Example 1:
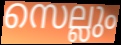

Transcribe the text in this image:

സെല്ലും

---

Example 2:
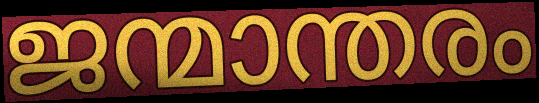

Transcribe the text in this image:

ജന്മാന്തരം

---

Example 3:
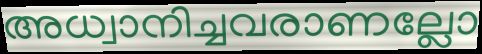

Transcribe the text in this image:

അധ്വാനിച്ചവരാണല്ലോ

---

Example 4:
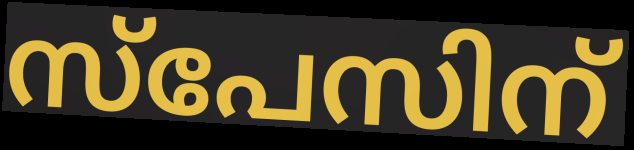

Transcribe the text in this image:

സ്പേസിന്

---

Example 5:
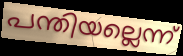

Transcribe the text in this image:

പന്തിയല്ലെന്ന്